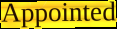
Appointed